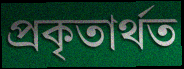
প্ৰকৃতাৰ্থত